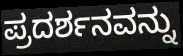
ಪ್ರದರ್ಶನವನ್ನು